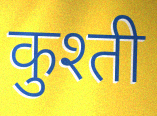
कुश्ती